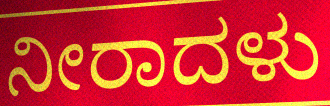
ನೀರಾದಳು